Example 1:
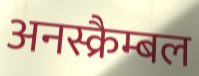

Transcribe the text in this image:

अनस्क्रैम्बल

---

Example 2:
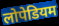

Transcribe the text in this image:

लोपेडियम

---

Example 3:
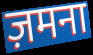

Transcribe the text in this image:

ज़मना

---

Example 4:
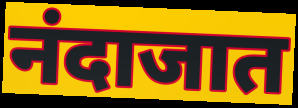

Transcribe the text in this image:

नंदाजात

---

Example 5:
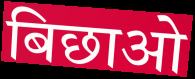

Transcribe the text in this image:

बिछाओ